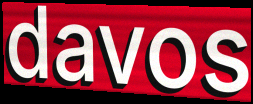
davos